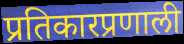
प्रतिकारप्रणाली